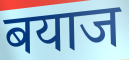
बयाज